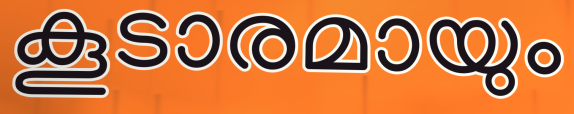
കൂടാരമായും